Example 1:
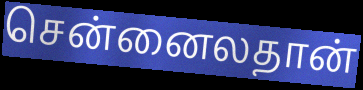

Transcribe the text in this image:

சென்னைலதான்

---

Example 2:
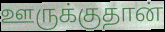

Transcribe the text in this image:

ஊருக்குதான்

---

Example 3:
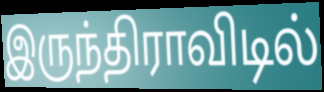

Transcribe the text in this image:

இருந்திராவிடில்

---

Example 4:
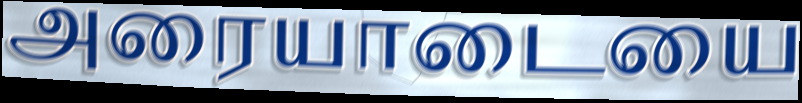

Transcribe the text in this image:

அரையாடையை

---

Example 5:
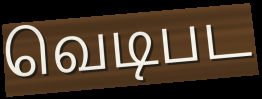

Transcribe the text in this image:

வெடிபட